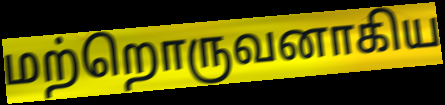
மற்றொருவனாகிய